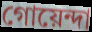
গোয়েন্দা